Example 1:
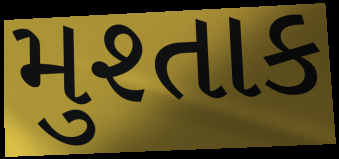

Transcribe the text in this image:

મુશ્તાક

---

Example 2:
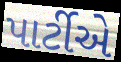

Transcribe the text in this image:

પાર્ટીએ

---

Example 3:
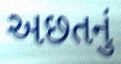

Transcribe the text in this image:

અછતનું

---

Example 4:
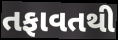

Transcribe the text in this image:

તફાવતથી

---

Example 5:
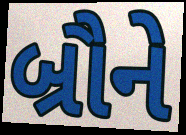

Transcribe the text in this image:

બ્રૌને